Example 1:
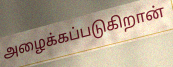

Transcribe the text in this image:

அழைக்கப்படுகிறான்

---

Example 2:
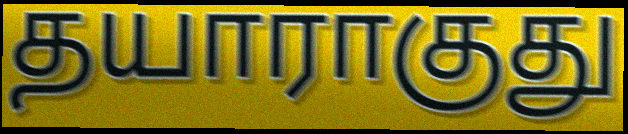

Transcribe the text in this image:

தயாராகுது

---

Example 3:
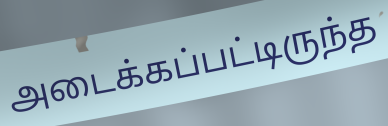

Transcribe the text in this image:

அடைக்கப்பட்டிருந்த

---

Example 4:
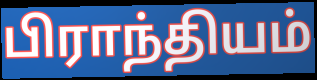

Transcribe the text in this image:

பிராந்தியம்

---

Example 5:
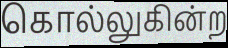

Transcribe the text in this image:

கொல்லுகின்ற